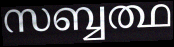
സബ്ബത്ഥ